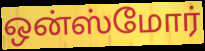
ஒன்ஸ்மோர்